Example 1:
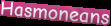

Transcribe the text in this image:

Hasmoneans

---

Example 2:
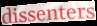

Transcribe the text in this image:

dissenters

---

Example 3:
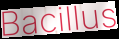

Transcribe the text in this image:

Bacillus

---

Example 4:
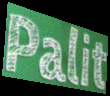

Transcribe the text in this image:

Palit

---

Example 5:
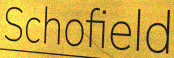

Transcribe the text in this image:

Schofield